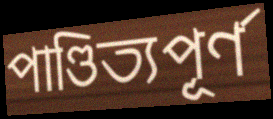
পাণ্ডিত্যপূৰ্ণ